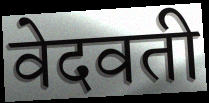
वेदवती